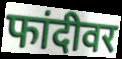
फांदीवर